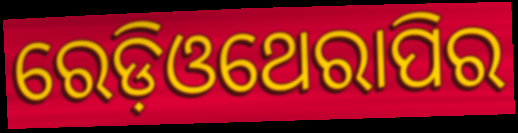
ରେଡ଼ିଓଥେରାପିର